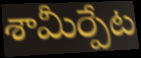
శామీర్పేట